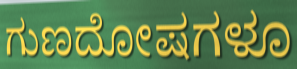
ಗುಣದೋಷಗಳೂ